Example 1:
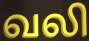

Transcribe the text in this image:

வலி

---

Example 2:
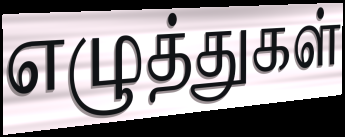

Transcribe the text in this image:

எழுத்துகள்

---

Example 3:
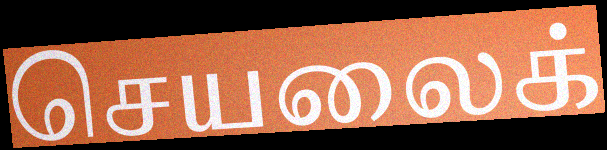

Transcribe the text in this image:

செயலைக்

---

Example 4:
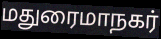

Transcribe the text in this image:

மதுரைமாநகர்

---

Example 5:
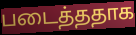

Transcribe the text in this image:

படைத்ததாக